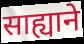
साह्याने